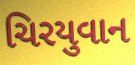
ચિરયુવાન